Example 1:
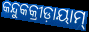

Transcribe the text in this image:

କନ୍ଦୁକକ୍ରୀଡ଼ାୟାମ୍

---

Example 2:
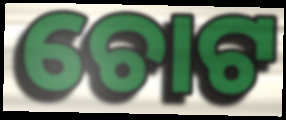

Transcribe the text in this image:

ଚୋଟ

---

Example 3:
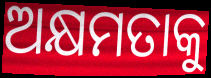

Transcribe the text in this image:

ଅକ୍ଷମତାକୁ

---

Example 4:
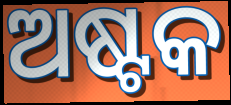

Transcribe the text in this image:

ଅଷ୍ଟକ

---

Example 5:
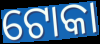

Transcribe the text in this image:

ଟୋକା